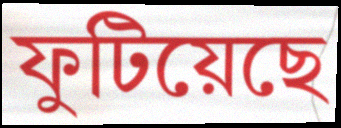
ফুটিয়েছে